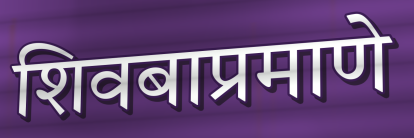
शिवबाप्रमाणे